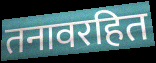
तनावरहित